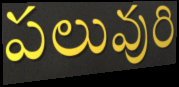
పలువురి